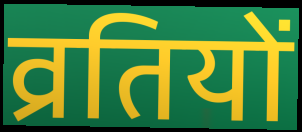
व्रतियों